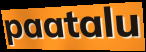
paatalu